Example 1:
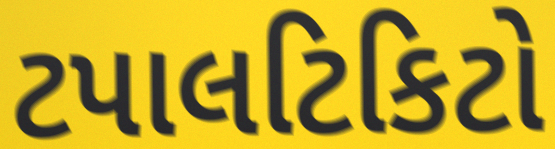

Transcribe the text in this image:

ટપાલટિકિટો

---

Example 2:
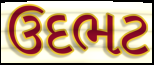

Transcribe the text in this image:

ઉદભટ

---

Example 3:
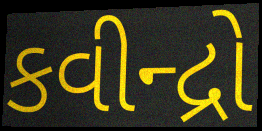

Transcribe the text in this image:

કવીન્દ્રો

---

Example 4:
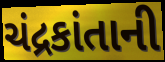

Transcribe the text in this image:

ચંદ્રકાંતાની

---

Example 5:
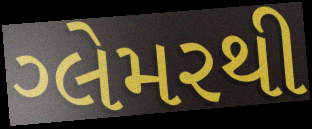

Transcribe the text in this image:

ગ્લેમરથી